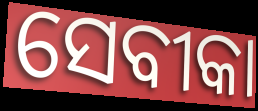
ସେବୀକା